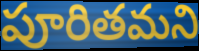
పూరితమని